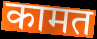
कामत